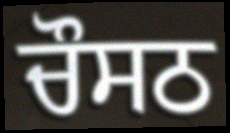
ਚੌਸਠ